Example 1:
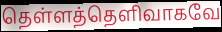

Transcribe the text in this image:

தெள்ளத்தெளிவாகவே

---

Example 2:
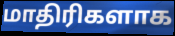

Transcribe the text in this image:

மாதிரிகளாக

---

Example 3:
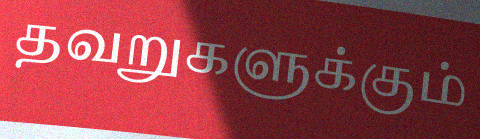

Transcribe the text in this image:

தவறுகளுக்கும்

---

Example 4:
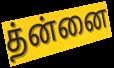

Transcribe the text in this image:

த்ன்னை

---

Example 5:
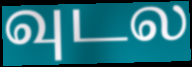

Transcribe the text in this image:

வுடல